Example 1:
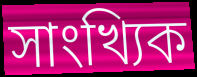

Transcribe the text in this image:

সাংখ্যিক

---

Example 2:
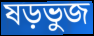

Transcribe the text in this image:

ষড়ভুজ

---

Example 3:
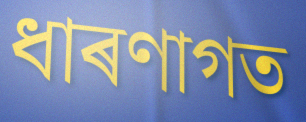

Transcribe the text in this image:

ধাৰণাগত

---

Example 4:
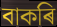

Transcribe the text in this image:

বাকৰি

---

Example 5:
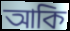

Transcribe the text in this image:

আকি